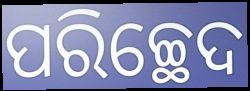
ପରିଚ୍ଛେଦ